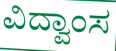
ವಿದ್ವಾಂಸ